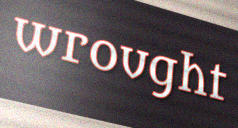
wrought